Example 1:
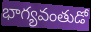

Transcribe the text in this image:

భాగ్యవంతుడో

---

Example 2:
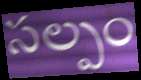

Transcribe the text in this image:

సల్పం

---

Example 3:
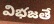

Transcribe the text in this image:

విభజతే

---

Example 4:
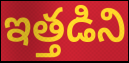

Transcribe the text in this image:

ఇత్తడిని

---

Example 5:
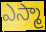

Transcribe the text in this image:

ఎస్మా